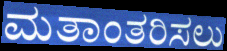
ಮತಾಂತರಿಸಲು